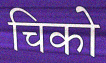
चिको